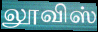
லூவிஸ்